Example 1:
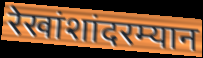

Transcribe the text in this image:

रेखांशांदरम्यान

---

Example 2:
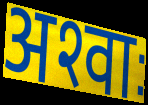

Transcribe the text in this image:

अश्वाः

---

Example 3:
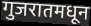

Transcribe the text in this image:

गुजरातमधून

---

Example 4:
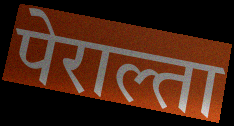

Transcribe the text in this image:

पेराल्ता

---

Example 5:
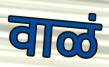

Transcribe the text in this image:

वाळं